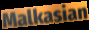
Malkasian